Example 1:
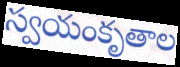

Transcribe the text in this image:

స్వయంకృతాల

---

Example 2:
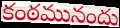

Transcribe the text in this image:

కంఠమునందు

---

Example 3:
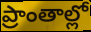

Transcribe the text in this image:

ప్రాంతాల్లో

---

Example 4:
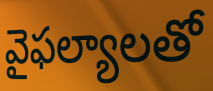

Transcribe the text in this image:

వైఫల్యాలతో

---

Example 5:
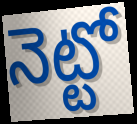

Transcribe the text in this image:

నెట్టో